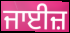
ਜਾਈਜ਼